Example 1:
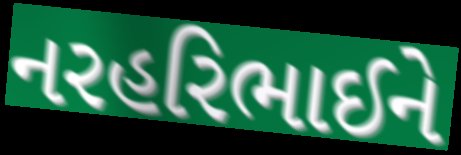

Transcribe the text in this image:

નરહરિભાઈને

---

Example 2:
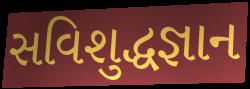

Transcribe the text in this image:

સવિશુદ્ધજ્ઞાન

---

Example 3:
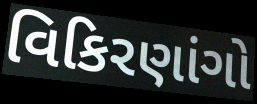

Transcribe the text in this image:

વિકિરણાંગો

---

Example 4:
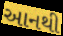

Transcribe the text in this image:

આનથી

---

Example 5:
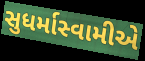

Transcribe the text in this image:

સુધર્માસ્વામીએ